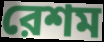
রেশম